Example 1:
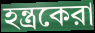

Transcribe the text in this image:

হন্ত্রকেরা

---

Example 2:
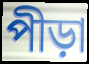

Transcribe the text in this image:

পীড়া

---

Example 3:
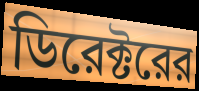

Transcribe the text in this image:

ডিরেক্টরের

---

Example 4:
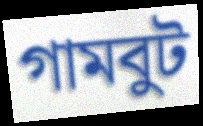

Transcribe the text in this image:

গামবুট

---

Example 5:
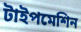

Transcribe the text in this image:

টাইপমেশিন